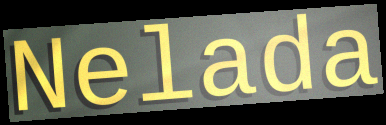
Nelada